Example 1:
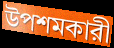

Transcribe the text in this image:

উপশমকারী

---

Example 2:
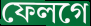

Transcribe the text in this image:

ফেলগে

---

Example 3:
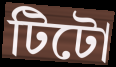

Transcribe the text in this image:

টিটো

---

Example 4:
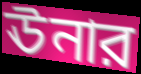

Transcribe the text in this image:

ঊনার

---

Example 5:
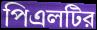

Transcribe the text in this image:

পিএলটির